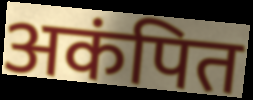
अकंपित